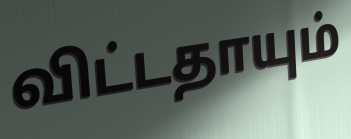
விட்டதாயும்